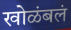
खोळंबलं